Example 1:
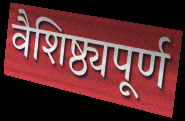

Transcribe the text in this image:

वैशिष्ठ्यपूर्ण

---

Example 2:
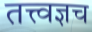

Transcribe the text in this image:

तत्त्वज्ञच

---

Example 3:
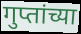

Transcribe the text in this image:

गुप्तांच्या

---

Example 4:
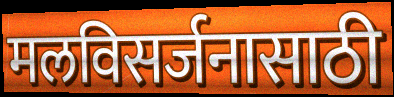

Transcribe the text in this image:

मलविसर्जनासाठी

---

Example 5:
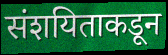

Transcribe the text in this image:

संशयिताकडून